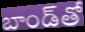
బాండ్‌తో